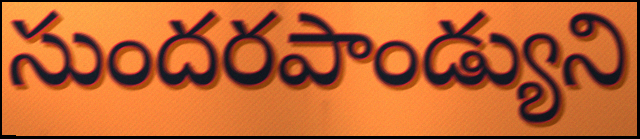
సుందరపాండ్యుని